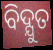
ବିଦ୍ଯୁତ